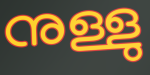
നുള്ളു